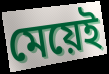
মেয়েই